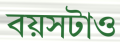
বয়সটাও